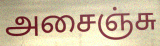
அசைஞ்சு